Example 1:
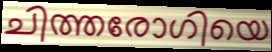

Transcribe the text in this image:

ചിത്തരോഗിയെ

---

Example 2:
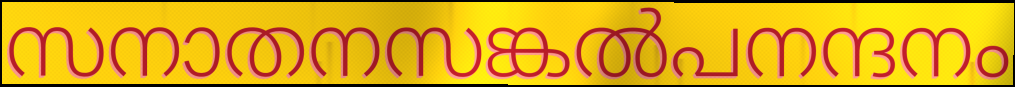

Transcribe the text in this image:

സനാതനസങ്കൽപനന്ദനം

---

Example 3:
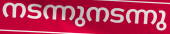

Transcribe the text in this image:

നടന്നുനടന്നു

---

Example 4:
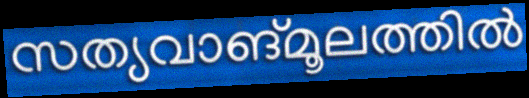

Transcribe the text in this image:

സത്യവാങ്മൂലത്തിൽ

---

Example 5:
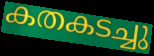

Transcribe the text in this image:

കതകടച്ചു